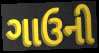
ગાઉની